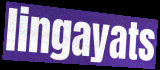
lingayats